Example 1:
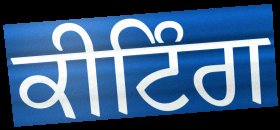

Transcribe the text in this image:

ਕੀਟਿੰਗ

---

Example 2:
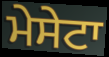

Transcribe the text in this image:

ਮੇਸੇਟਾ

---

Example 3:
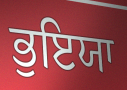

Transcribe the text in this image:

ਭੁਇਯਾ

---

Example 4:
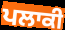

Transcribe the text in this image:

ਪਲਾਕੀ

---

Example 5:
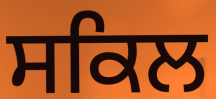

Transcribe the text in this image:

ਸਕਿਲ